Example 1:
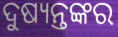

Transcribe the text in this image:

ଦୁଷ୍ୟନ୍ତଙ୍କର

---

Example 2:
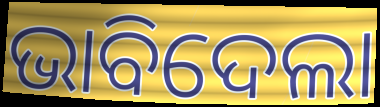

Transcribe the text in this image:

ଭାବିଦେଲା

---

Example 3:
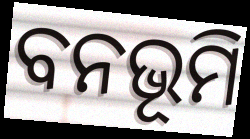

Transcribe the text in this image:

ବନଭୂମି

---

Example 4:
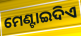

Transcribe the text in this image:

ମେଣ୍ଟାଇଦିଏ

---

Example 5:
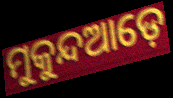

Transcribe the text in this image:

ମୁକୁନ୍ଦଆଡ଼େ